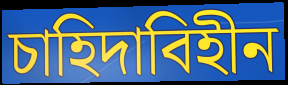
চাহিদাবিহীন